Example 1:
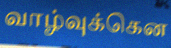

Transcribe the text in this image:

வாழ்வுக்கென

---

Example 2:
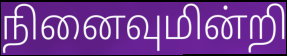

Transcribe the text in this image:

நினைவுமின்றி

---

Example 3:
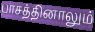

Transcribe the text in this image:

பாசத்தினாலும்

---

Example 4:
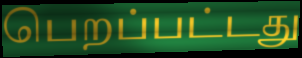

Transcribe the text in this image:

பெறப்பட்டது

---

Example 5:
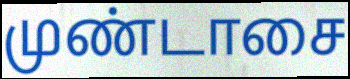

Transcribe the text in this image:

முண்டாசை